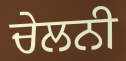
ਚੇਲਨੀ